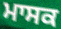
ਮਾਸਕ